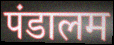
पंडालम